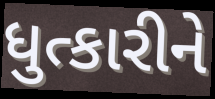
ધુત્કારીને